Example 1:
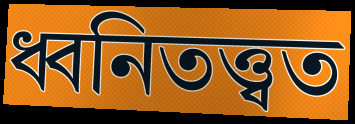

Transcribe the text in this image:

ধ্বনিতত্ত্বত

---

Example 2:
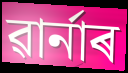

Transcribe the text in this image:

ৱাৰ্নাৰ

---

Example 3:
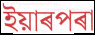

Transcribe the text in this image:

ইয়াৰপৰা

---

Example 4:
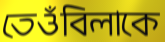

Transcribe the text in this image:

তেওঁবিলাকে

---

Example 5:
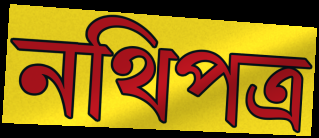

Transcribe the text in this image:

নথিপত্ৰ